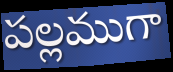
పల్లముగా